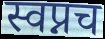
स्वप्नच